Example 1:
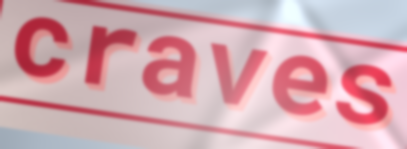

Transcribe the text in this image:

craves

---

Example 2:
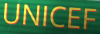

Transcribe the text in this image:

UNICEF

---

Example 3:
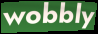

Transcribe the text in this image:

wobbly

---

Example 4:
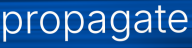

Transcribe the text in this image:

propagate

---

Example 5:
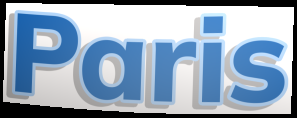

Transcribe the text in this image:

Paris